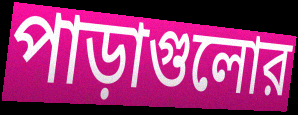
পাড়াগুলোর